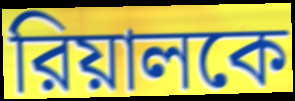
রিয়ালকে